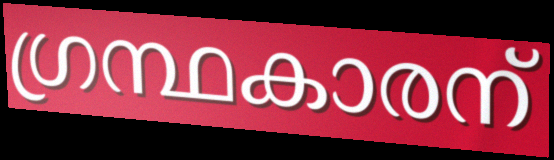
ഗ്രന്ഥകാരന്